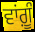
ਵਾਂਗ਼ੂੰ